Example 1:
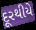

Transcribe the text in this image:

દૂરથીયે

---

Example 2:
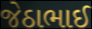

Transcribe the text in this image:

જેઠાભાઈ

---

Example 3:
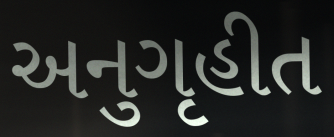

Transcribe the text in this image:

અનુગૃહીત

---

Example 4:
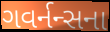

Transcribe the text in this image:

ગવર્નન્સના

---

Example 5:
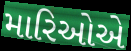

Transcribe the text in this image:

મારિઓએ